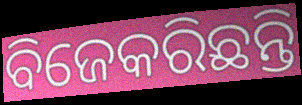
ବିଜେକରିଛନ୍ତି